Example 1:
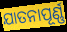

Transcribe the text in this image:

ଯାତନାପୂର୍ଣ୍ଣ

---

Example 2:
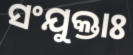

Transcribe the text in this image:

ସଂଯୁକ୍ତାଃ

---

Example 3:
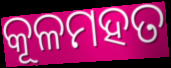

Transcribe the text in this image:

କୂଳମହତ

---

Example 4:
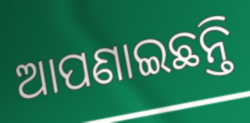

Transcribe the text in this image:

ଆପଣାଇଛନ୍ତି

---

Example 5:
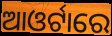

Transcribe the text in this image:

ଆଓର୍ଟାରେ